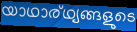
യാഥാര്ഥ്യങ്ങളുടെ